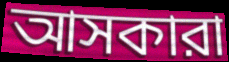
আসকারা